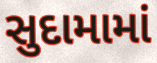
સુદામામાં